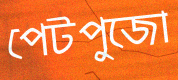
পেটপুজো